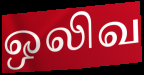
ஒலிவ